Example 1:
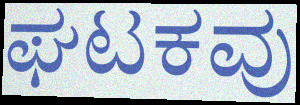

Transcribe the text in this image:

ಘಟಕವು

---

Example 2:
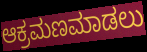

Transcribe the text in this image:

ಆಕ್ರಮಣಮಾಡಲು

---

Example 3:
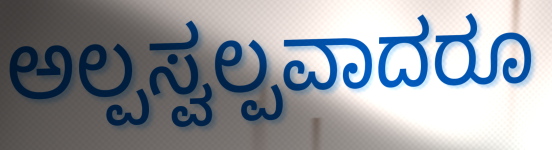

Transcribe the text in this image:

ಅಲ್ಪಸ್ವಲ್ಪವಾದರೂ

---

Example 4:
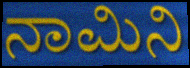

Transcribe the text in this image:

ನಾಮಿನಿ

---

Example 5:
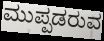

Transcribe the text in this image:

ಮುಪ್ಪಡರುವ